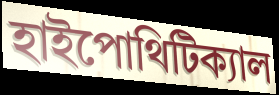
হাইপোথিটিক্যাল